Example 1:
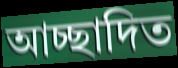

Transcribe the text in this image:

আচ্ছাদিত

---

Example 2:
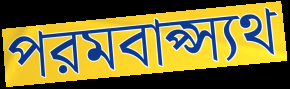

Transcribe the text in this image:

পরমবাপ্স্যথ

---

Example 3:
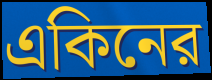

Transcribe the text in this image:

একিনের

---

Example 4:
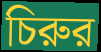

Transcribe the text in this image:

চিরুর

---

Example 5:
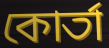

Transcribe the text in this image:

কোর্তা